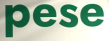
pese